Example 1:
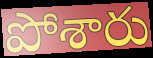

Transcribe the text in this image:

పోశారు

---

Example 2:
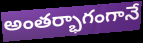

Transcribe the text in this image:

అంతర్భాగంగానే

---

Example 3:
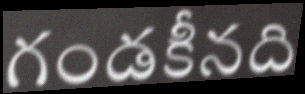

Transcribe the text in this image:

గండకీనది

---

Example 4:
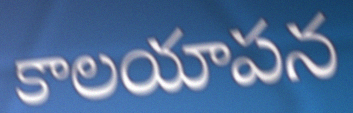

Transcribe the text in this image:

కాలయాపన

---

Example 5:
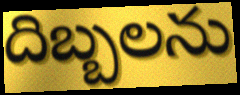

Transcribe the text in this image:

దిబ్బలను